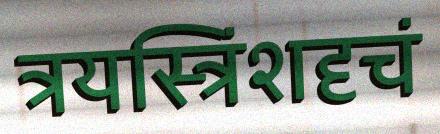
त्रयस्त्रिंशदृचं